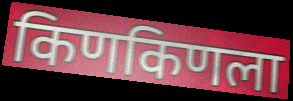
किणकिणला